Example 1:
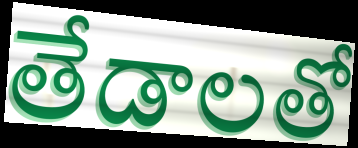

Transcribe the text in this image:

తేడాలతో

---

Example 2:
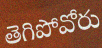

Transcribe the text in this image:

తెగిపోవోరు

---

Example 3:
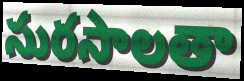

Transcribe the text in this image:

సురసాలతా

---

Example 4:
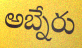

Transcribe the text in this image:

అబ్నేరు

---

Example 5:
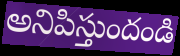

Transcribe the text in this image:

అనిపిస్తుందండి